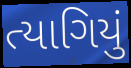
ત્યાગિયું